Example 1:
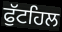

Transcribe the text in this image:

ਫੁੱਟਹਿਲ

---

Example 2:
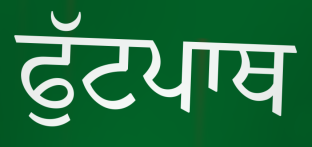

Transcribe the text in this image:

ਫੁੱਟਪਾਥ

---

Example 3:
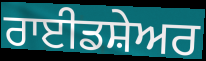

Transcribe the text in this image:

ਰਾਈਡਸ਼ੇਅਰ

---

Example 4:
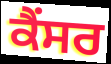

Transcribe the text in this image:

ਕੈੰਸਰ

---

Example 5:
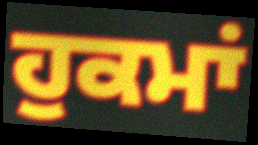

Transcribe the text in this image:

ਹੁਕਮਾਂ